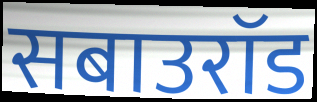
सबाउरॉड